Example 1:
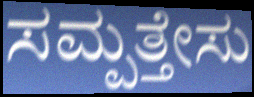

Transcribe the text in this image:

ಸಮ್ಪತ್ತೇಸು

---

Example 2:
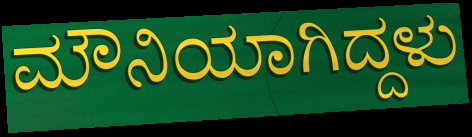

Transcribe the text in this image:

ಮೌನಿಯಾಗಿದ್ದಳು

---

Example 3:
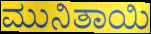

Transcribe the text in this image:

ಮುನಿತಾಯಿ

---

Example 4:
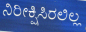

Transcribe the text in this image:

ನಿರೀಕ್ಷಿಸಿರಲಿಲ್ಲ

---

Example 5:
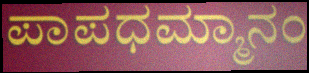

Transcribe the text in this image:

ಪಾಪಧಮ್ಮಾನಂ